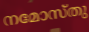
നമോസ്തു